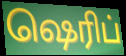
ஷெரிப்